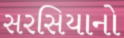
સરસિયાનો